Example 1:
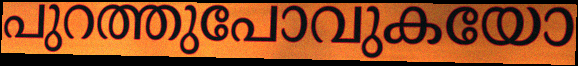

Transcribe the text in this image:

പുറത്തുപോവുകയോ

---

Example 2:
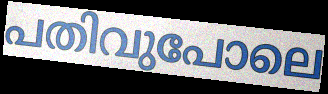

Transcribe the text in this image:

പതിവുപോലെ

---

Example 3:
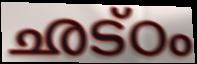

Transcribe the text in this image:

ഛട്ഠം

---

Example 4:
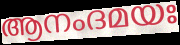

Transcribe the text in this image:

ആനംദമയഃ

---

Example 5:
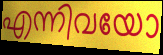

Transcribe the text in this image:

എന്നിവയോ